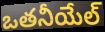
ఒతనీయేల్